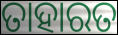
ତାହାରତ